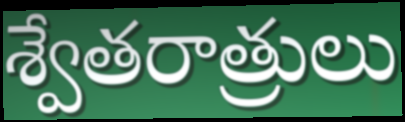
శ్వేతరాత్రులు